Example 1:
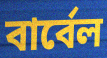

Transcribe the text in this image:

বার্বেল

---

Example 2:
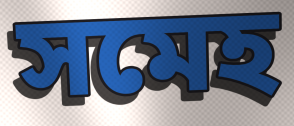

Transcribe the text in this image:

সমেহ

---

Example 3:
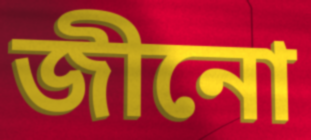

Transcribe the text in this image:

জীনো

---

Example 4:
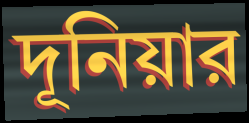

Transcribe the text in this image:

দূনিয়ার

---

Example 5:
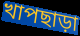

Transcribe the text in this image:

খাপছাড়া